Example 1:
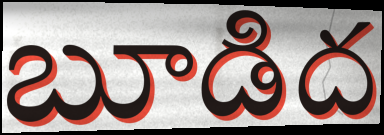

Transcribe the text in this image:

బూడిద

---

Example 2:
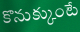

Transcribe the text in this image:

కొనుక్కుంటే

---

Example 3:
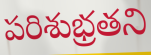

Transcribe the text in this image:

పరిశుభ్రతని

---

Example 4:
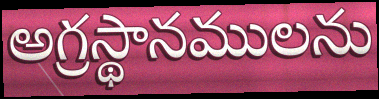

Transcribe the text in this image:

అగ్రస్థానములను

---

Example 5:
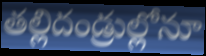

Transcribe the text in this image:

తల్లిదండ్రుల్లోనూ